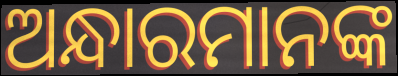
ଅନ୍ଧାରମାନଙ୍କ